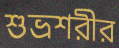
শুভ্রশরীর